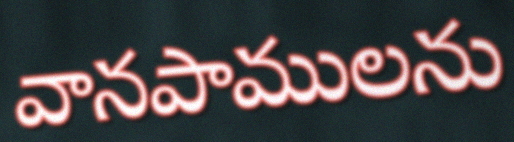
వానపాములను